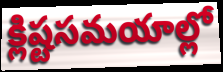
క్లిష్టసమయాల్లో